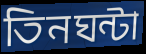
তিনঘন্টা